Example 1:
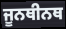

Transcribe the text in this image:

ਜੂਨਥੀਨਥ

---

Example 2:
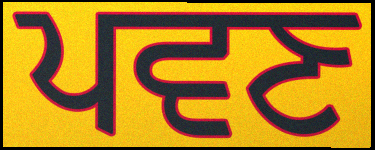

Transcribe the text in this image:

ਪਵਣ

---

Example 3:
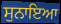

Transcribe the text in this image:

ਸੁਨਾਇਆ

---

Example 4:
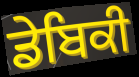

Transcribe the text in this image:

ਡੇਬਿਕੀ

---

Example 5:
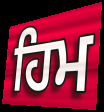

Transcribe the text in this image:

ਹਿਮ